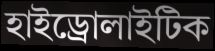
হাইড্রোলাইটিক